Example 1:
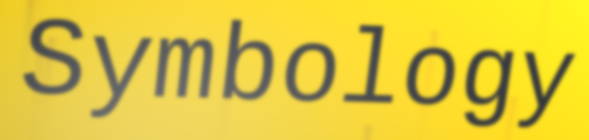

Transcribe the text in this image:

Symbology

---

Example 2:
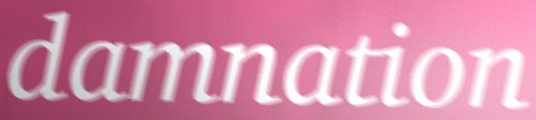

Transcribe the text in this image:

damnation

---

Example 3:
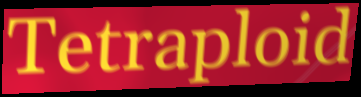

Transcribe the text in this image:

Tetraploid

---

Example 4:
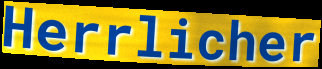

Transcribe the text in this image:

Herrlicher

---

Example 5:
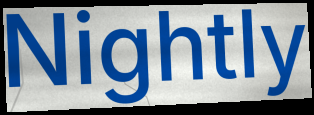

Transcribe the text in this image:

Nightly